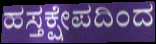
ಹಸ್ತಕ್ಷೇಪದಿಂದ